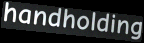
handholding